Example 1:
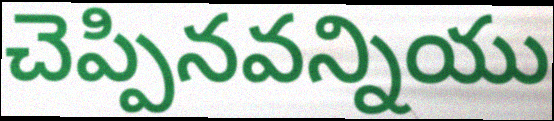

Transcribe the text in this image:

చెప్పినవన్నియు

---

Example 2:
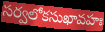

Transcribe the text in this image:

సర్వలోకసుఖావహః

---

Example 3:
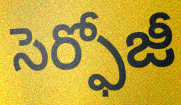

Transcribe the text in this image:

సెర్ఫోజీ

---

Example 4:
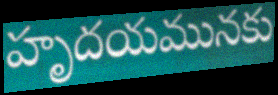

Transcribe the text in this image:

హృదయమునకు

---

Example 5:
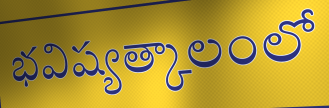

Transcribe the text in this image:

భవిష్యత్కాలంలో